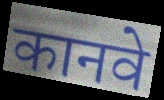
कानवे